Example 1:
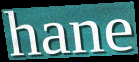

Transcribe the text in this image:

hane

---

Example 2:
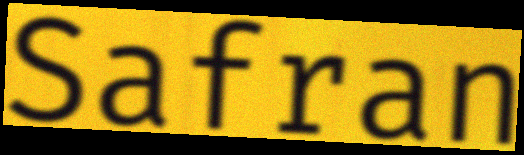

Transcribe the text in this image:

Safran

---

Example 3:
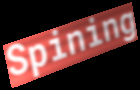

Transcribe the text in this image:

Spining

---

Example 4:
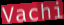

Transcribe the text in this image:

Vachi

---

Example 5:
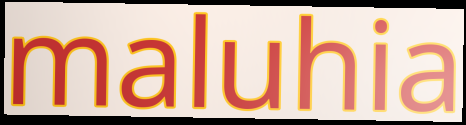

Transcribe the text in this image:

maluhia